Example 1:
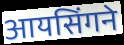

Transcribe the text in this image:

आयसिंगने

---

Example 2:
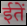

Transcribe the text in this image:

ईतें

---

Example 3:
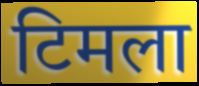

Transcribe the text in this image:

टिमला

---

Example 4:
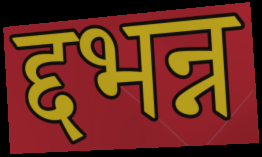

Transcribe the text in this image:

द्दभन्न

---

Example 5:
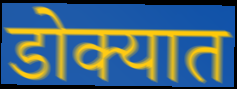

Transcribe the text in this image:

डोक्यात